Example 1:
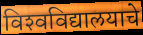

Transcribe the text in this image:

विश्वविद्यालयाचे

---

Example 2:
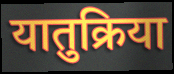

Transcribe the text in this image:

यातुक्रिया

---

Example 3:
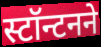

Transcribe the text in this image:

स्टॉन्टनने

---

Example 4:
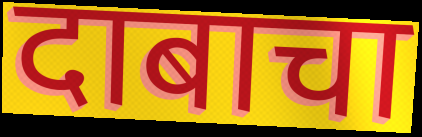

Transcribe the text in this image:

दाबाचा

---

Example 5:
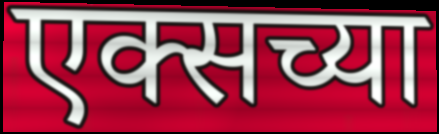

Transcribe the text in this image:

एक्सच्या